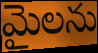
మైలను